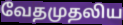
வேதமுதலிய